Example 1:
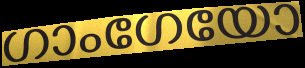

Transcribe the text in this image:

ഗാംഗേയോ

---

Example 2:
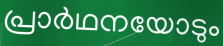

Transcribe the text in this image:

പ്രാർഥനയോടും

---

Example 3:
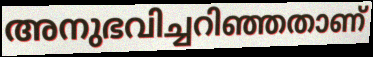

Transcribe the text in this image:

അനുഭവിച്ചറിഞ്ഞതാണ്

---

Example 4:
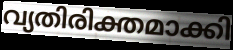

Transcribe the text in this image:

വ്യതിരിക്തമാക്കി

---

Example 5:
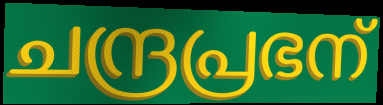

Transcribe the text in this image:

ചന്ദ്രപ്രഭന്